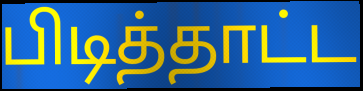
பிடித்தாட்ட